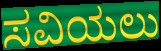
ಸವಿಯಲು